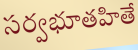
సర్వభూతహితే